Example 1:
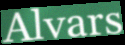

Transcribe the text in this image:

Alvars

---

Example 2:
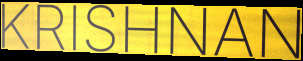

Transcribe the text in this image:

KRISHNAN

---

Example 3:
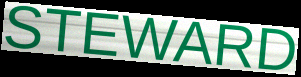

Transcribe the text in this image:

STEWARD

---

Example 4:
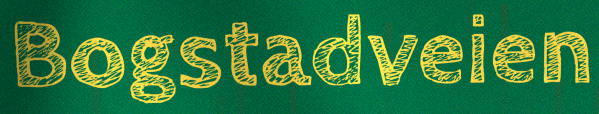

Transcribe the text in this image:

Bogstadveien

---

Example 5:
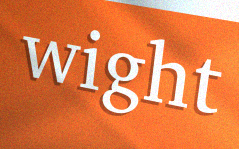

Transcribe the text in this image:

wight